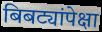
बिबट्यांपेक्षा